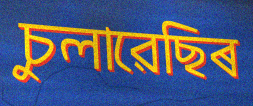
চুলাৱেছিৰ